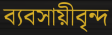
ব্যবসায়ীবৃন্দ